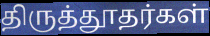
திருத்தூதர்கள்